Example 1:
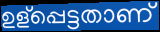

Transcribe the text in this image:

ഉള്പ്പെട്ടതാണ്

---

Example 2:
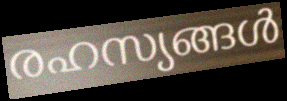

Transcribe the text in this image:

രഹസ്യങ്ങൾ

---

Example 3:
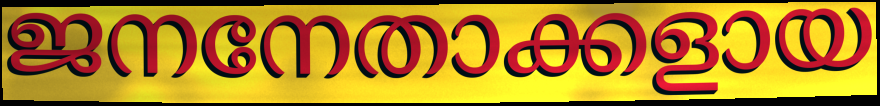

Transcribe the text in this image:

ജനനേതാക്കളായ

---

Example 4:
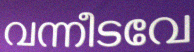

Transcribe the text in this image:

വന്നീടവേ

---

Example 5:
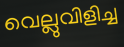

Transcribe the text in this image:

വെല്ലുവിളിച്ച